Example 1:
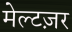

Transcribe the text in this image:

मेल्टज़र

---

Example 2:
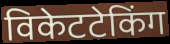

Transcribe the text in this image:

विकेटटेकिंग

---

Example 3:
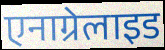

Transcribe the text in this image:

एनाग्रेलाइड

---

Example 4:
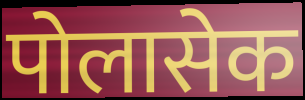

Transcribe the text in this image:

पोलासेक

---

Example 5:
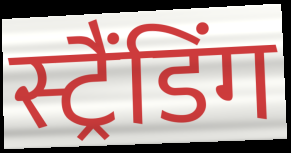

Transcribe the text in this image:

स्ट्रैंडिंग